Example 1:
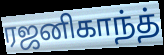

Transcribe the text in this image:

ரஜனிகாந்த்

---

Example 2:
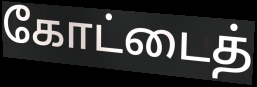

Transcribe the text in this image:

கோட்டைத்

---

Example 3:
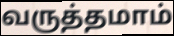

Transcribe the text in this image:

வருத்தமாம்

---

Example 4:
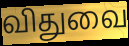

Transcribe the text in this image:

விதுவை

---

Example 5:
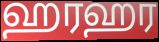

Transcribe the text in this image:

ஹரஹர